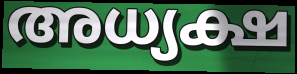
അധ്യക്ഷ